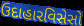
ઉદાહારવિસેસો